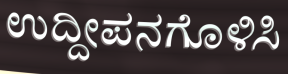
ಉದ್ದೀಪನಗೊಳಿಸಿ